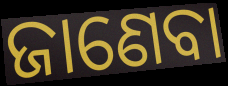
ଜାଣେବା